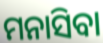
ମନାସିବା